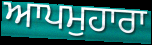
ਆਪਮੁਹਾਰਾ